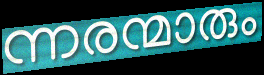
ന്നരന്മാരും